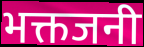
भक्तजनी